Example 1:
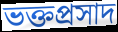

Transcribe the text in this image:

ভক্তপ্রসাদ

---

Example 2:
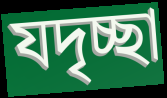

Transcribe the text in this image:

যদৃচ্ছা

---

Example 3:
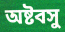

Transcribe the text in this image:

অষ্টবসু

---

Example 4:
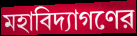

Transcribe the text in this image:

মহাবিদ্যাগণের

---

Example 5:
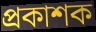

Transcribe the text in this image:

প্রকাশক